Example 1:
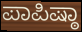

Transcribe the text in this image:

ಪಾಪಿಷ್ಠಾ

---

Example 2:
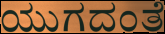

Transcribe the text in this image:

ಯುಗದಂತೆ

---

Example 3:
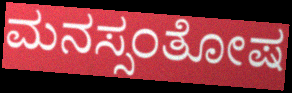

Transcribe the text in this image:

ಮನಸ್ಸಂತೋಷ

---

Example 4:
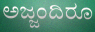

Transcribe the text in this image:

ಅಜ್ಜಂದಿರೂ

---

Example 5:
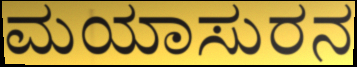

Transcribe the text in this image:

ಮಯಾಸುರನ